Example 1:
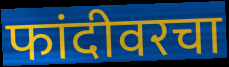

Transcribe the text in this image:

फांदीवरचा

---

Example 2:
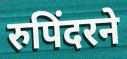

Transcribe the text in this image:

रुपिंदरने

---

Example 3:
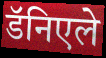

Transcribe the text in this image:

डॅनिएले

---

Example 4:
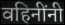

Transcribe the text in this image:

वहिनींनी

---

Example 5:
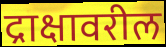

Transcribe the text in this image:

द्राक्षावरील